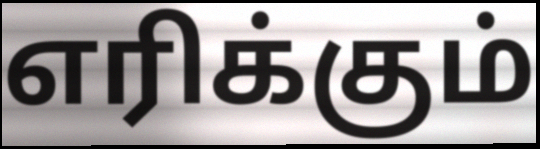
எரிக்கும்